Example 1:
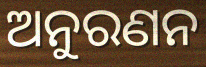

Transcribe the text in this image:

ଅନୁରଣନ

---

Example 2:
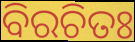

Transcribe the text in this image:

ବିରଚିତଃ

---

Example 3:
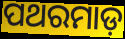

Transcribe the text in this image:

ପଥରମାଡ଼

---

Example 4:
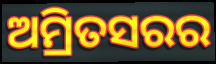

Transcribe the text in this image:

ଅମ୍ରିତସରର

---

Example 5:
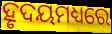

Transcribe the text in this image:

ହୃଦୟମଧ୍ୟରେ